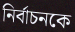
নির্বাচনকে